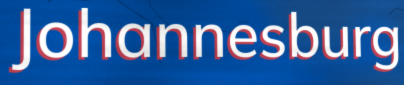
Johannesburg